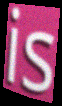
is